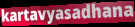
kartavyasadhana